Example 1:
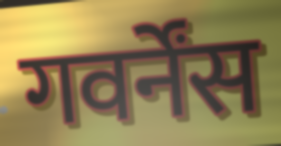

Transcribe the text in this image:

गवर्नेंस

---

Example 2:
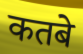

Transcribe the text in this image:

कतबे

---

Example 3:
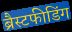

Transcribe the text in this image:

ब्रैस्टफीडिंग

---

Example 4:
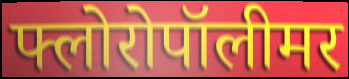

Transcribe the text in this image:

फ्लोरोपॉलीमर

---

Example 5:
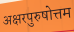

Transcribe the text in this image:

अक्षरपुरुषोत्तम